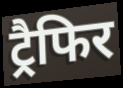
ट्रैफिर